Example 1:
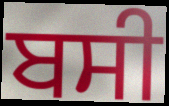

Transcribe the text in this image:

ਬਸੀ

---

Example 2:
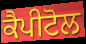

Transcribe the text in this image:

ਕੈਪੀਟੋਲ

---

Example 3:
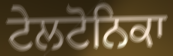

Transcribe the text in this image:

ਟੇਲਟੋਨਿਕਾ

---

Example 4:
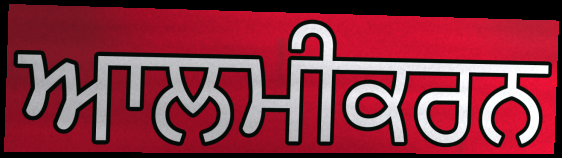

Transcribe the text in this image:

ਆਲਮੀਕਰਨ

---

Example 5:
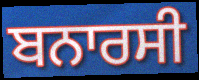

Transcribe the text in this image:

ਬਨਾਰਸੀ